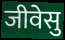
जीवेसु